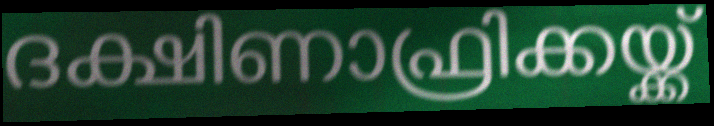
ദക്ഷിണാഫ്രിക്കയ്ക്ക്